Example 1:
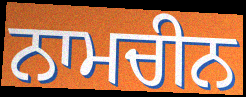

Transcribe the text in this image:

ਨਾਮਚੀਨ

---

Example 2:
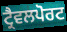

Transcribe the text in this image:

ਟ੍ਰੈਵਲਪੋਰਟ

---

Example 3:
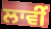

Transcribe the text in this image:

ਲਾਵੀਂ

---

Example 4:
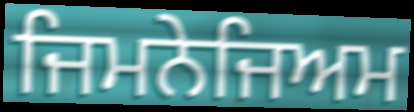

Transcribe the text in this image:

ਜਿਮਨੇਜਿਅਮ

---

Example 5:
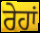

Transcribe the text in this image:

ਰੇਹਾਂ